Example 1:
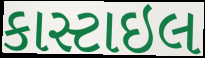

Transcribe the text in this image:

કાસ્ટાઇલ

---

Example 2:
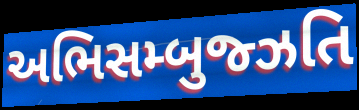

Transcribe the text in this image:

અભિસમ્બુજ્ઝતિ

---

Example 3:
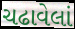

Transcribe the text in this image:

ચઢાવેલાં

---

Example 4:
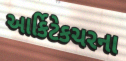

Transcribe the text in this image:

આર્કિટેકચરના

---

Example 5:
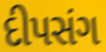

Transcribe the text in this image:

દીપસંગ